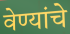
वेण्यांचे